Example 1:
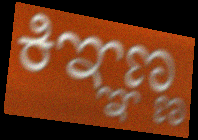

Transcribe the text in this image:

ಕಿಞ್ಞಣ್ಣ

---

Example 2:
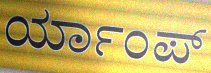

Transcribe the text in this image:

ರ್ಯಾಂಪ್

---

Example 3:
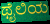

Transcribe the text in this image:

ಥೈಲಿಯ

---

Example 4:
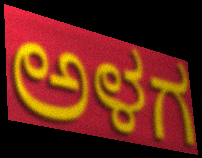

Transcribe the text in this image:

ಅಳಗ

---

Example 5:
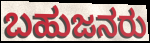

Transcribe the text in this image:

ಬಹುಜನರು